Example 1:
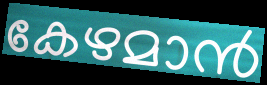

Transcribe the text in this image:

കേഴമാൻ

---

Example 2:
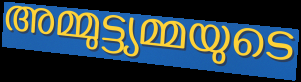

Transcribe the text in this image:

അമ്മുട്ട്യമ്മയുടെ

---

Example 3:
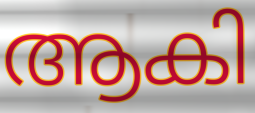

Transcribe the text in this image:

ആകി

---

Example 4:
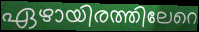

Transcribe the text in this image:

ഏഴായിരത്തിലേറെ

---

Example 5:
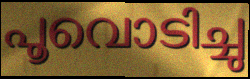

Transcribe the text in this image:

പൂവൊടിച്ചു